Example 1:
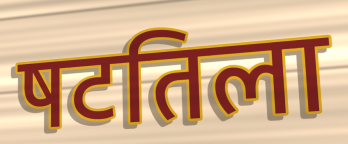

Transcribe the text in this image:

षटतिला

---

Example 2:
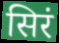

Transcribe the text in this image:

सिरं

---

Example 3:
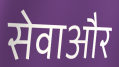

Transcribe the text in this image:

सेवाऔर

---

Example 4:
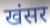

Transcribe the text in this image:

खंसर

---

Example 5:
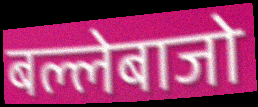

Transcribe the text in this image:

बल्लेबाजो